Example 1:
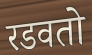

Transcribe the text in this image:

रडवतो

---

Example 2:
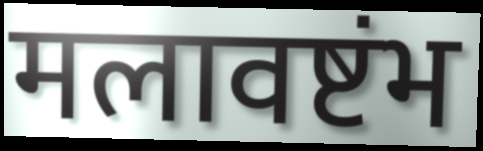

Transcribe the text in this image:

मलावष्टंभ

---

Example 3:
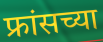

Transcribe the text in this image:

फ्रांसच्या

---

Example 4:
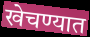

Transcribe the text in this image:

खेचण्यात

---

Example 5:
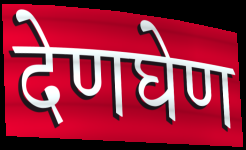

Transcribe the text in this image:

देणघेण